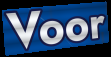
Voor